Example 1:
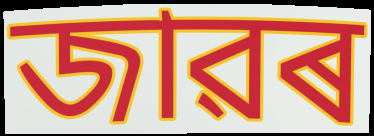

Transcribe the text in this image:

জাৱৰ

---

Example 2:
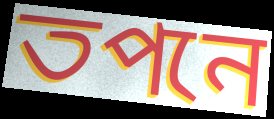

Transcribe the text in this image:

তপনে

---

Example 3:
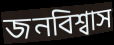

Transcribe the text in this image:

জনবিশ্বাস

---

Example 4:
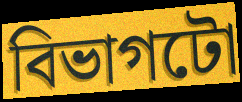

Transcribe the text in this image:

বিভাগটো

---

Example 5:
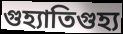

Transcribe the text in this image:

গুহ্যাতিগুহ্য